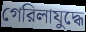
গেরিলাযুদ্ধে